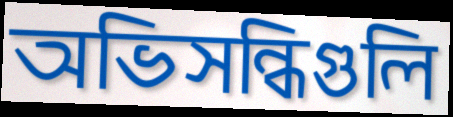
অভিসন্ধিগুলি